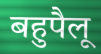
बहुपैलू